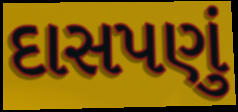
દાસપણું